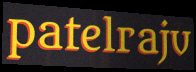
patelraju